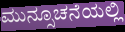
ಮುನ್ಸೂಚನೆಯಲ್ಲಿ